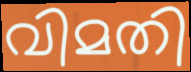
വിമതി